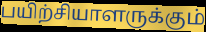
பயிற்சியாளருக்கும்